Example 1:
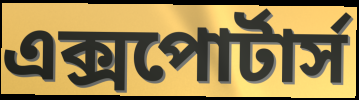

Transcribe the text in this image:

এক্সপোর্টার্স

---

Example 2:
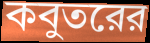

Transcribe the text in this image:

কবুতরের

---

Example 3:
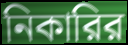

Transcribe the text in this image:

নিকারির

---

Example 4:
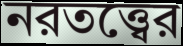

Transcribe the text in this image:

নরতত্ত্বের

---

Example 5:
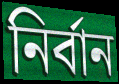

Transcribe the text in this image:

নির্বান